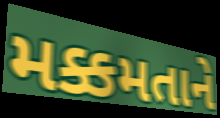
મક્કમતાને